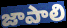
జాపాలి